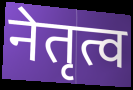
नेतृत्‍व